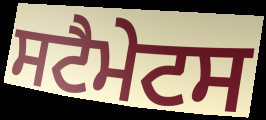
ਸਟੈਮੇਟਸ